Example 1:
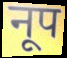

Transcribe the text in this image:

नूप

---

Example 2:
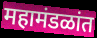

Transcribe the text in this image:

महामंडळांत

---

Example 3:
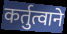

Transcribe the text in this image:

कर्तुत्वाने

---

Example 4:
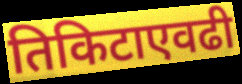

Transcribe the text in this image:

तिकिटाएवढी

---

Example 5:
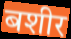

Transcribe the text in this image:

बशीर